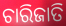
ଚାରିଜାତି